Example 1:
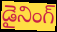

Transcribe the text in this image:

డైనింగ్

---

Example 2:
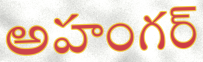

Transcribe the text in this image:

అహంగర్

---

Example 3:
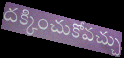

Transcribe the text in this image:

దక్కించుకోవచ్చు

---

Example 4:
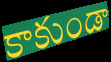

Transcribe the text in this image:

కాకుండా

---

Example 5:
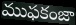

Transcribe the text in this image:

ముఫకంజా